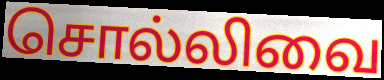
சொல்லிவை